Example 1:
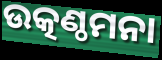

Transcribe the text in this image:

ଉତ୍କଣ୍ଠମନା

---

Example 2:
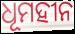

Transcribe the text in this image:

ଧୂମହୀନ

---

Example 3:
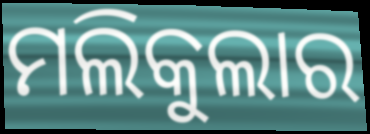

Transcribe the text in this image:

ମଲିକୁଲାର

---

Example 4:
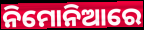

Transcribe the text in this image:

ନିମୋନିଆରେ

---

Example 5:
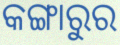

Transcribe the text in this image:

କଙ୍ଗାରୁର